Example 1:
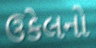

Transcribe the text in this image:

ઉકેલનો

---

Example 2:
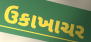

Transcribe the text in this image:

ઉકાખાચર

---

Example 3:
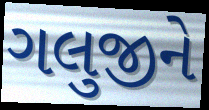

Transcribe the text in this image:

ગલુજીને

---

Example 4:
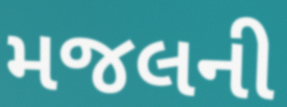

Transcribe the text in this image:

મજલની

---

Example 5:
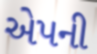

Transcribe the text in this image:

એપની